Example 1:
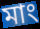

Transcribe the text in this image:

মাং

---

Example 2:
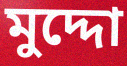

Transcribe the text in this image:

মুদ্দো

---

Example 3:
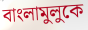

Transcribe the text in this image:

বাংলামুলুকে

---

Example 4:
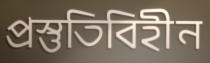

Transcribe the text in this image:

প্রস্তুতিবিহীন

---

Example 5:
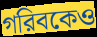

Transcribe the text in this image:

গরিবকেও